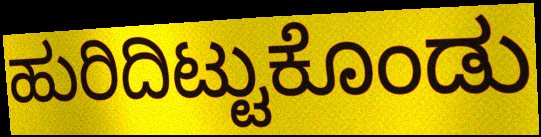
ಹುರಿದಿಟ್ಟುಕೊಂಡು